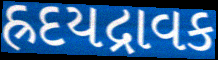
હ્રદયદ્રાવક